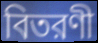
বিতরণী